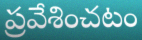
ప్రవేశించటం